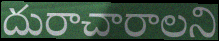
దురాచారాలని